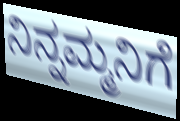
ನಿನ್ನಮ್ಮನಿಗೆ